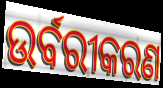
ଉର୍ବରୀକରଣ